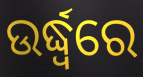
ଉର୍ଦ୍ଧ୍ଵରେ